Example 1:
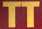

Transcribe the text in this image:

TT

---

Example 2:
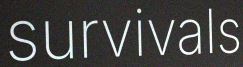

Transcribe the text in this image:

survivals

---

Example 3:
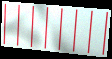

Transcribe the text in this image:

IIIIIIII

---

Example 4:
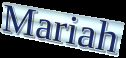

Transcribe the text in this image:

Mariah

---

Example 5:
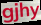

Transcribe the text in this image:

gjhy